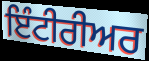
ਇੰਟੀਰੀਅਰ